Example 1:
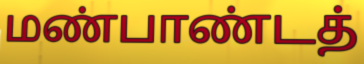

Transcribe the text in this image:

மண்பாண்டத்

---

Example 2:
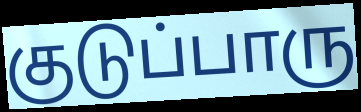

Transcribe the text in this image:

குடுப்பாரு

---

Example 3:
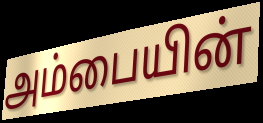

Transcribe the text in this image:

அம்பையின்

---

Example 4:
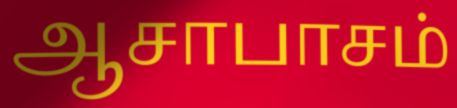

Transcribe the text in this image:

ஆசாபாசம்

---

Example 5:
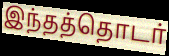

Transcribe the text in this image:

இந்தத்தொடர்